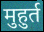
मुहुर्त